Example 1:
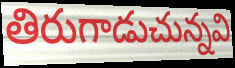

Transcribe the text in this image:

తిరుగాడుచున్నవి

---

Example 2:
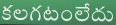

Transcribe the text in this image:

కలగటంలేదు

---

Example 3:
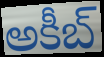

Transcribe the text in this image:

అకీబ్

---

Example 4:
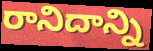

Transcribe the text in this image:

రానిదాన్ని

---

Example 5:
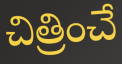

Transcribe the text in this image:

చిత్రించే